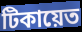
টিকায়েত